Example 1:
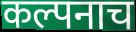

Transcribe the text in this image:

कल्पनाच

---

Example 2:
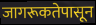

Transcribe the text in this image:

जागरूकतेपासून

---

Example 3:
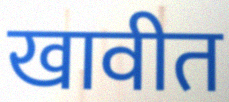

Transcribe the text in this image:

खावीत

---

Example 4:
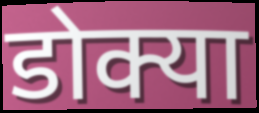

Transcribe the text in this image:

डोक्या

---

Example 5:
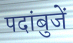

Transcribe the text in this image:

पदांबुजें